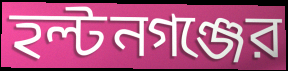
হল্টনগঞ্জের